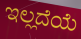
ಇಲ್ಲದೆಯೆ